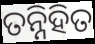
ତନ୍ନିହିତ